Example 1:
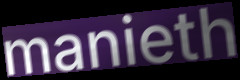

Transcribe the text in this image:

manieth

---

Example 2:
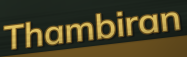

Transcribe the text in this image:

Thambiran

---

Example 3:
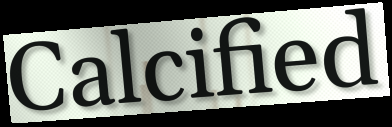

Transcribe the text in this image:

Calcified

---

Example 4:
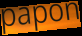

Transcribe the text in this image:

papon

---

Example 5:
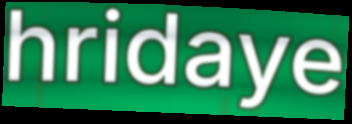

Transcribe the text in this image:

hridaye